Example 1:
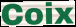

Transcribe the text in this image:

Coix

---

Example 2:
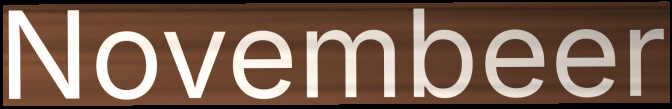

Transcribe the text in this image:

Novembeer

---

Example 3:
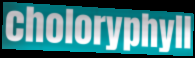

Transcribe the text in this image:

choloryphyll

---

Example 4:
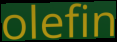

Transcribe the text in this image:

olefin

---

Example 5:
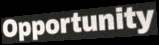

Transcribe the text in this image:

Opportunity